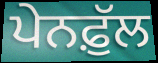
ਪੇਨਫ਼ੁੱਲ